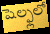
షెల్ఫ్లలో